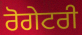
ਰੋਗੇਟਰੀ